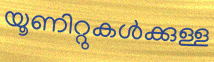
യൂണിറ്റുകൾക്കുള്ള